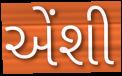
એંશી